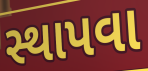
સ્થાપવા